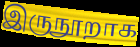
இருநூறாக